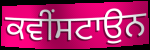
ਕਵੀਂਸਟਾਉਨ